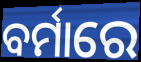
ବର୍ମାରେ